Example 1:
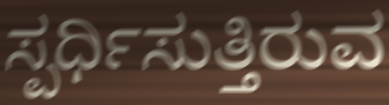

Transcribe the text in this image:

ಸ್ಪರ್ಧಿಸುತ್ತಿರುವ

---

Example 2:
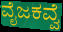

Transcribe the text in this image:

ವೈಜಕವ್ವೆ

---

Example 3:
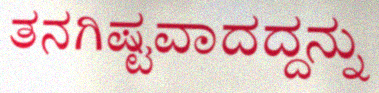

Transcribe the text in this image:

ತನಗಿಷ್ಟವಾದದ್ದನ್ನು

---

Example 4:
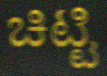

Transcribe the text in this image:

ಚಿಟ್ಟಿ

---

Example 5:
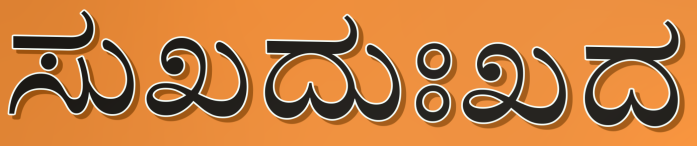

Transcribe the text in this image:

ಸುಖದುಃಖದ